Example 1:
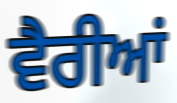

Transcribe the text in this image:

ਵੈਰੀਆਂ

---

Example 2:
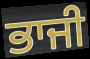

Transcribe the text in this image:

ਭਾਜੀ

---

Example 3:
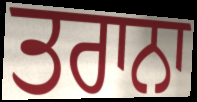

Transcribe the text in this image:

ਤਰਾਨਾ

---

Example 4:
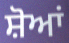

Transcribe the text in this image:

ਸ਼ੋਆਂ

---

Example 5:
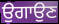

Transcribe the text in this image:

ਉਗਾਉਣ